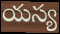
యస్య